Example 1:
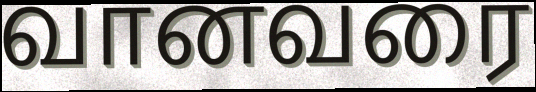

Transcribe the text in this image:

வானவரை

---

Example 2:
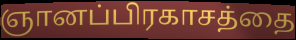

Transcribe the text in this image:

ஞானப்பிரகாசத்தை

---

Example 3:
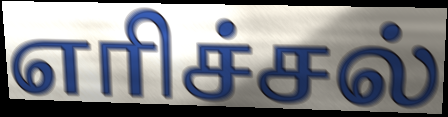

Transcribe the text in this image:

எரிச்சல்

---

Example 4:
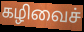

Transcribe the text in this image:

கழிவைச்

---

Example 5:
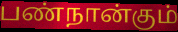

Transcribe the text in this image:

பண்நான்கும்